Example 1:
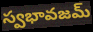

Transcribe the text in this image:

స్వభావజమ్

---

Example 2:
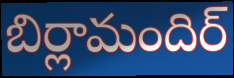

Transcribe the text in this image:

బిర్లామందిర్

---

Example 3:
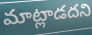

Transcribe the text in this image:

మాట్లాడదని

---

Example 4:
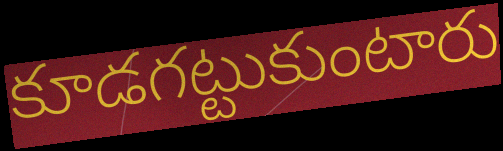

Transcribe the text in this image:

కూడగట్టుకుంటారు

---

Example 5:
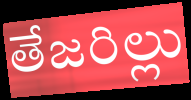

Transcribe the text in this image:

తేజరిల్లు